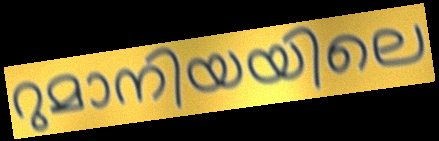
റുമാനിയയിലെ